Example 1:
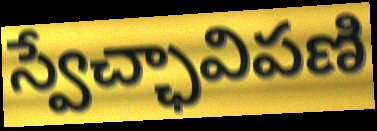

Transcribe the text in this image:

స్వేచ్ఛావిపణి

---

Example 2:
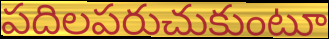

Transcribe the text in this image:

పదిలపరుచుకుంటూ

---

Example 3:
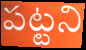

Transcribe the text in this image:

పట్టని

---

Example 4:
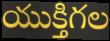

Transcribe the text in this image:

యుక్తిగల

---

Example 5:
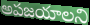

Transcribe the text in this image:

అపజయాలని